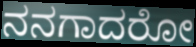
ನನಗಾದರೋ